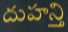
దుహన్తి